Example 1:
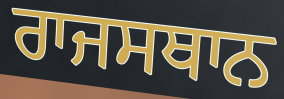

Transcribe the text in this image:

ਰਾਜਸਥਾਨ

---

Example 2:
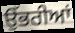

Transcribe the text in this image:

ਉੱਭਰੀਆਂ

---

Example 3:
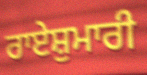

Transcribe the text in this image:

ਰਾਏਸ਼ੁਮਾਰੀ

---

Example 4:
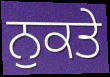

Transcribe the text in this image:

ਨੁਕਤੇ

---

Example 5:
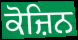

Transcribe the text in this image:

ਕੋਜ਼ਿਨ